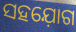
ସହଯ଼ୋଗ